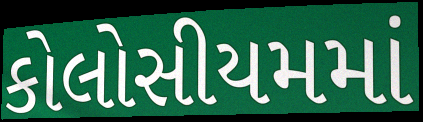
કોલોસીયમમાં